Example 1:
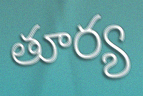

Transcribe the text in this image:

తూర్య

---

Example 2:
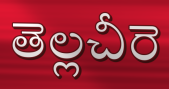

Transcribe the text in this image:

తెల్లచీరె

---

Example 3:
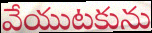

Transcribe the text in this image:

వేయుటకును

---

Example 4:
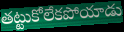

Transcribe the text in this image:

తట్టుకోలేకపోయాడు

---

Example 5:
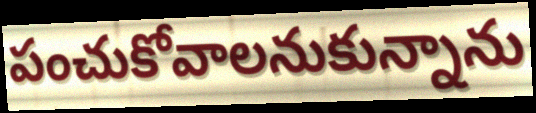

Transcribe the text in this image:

పంచుకోవాలనుకున్నాను